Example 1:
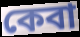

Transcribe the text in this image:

কেবা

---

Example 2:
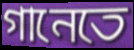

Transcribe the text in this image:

গানেতে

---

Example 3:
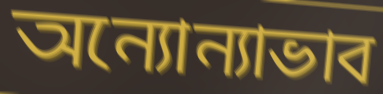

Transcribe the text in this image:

অন্যোন্যাভাব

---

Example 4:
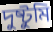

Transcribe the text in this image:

দুষ্টুমি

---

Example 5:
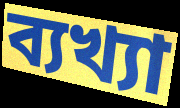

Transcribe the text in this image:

ব্যখ্যা